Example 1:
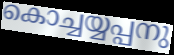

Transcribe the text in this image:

കൊച്ചയ്യപ്പനു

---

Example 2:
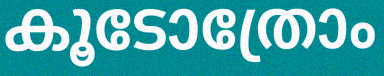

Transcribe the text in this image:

കൂടോത്രോം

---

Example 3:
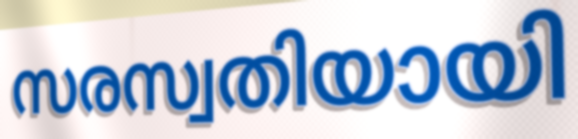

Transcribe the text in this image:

സരസ്വതിയായി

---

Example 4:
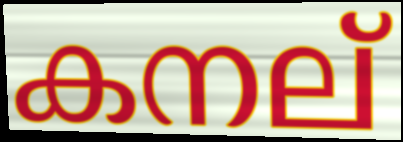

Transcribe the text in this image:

കനല്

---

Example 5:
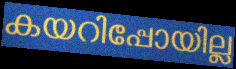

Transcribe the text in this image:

കയറിപ്പോയില്ല